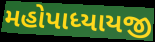
મહોપાધ્યાયજી